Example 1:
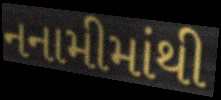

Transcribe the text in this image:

નનામીમાંથી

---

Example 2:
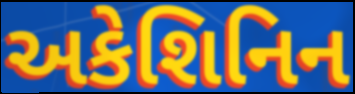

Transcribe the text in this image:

અકેશિનિન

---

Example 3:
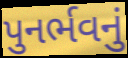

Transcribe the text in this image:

પુનર્ભવનું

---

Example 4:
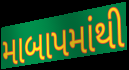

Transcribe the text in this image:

માબાપમાંથી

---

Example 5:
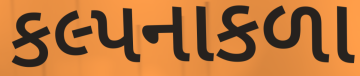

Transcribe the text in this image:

કલ્પનાકળા